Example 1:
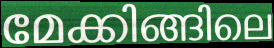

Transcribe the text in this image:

മേക്കിങ്ങിലെ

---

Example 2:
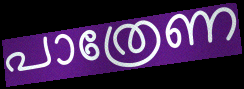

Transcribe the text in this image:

പാത്രേണ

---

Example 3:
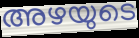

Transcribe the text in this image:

അഴയുടെ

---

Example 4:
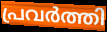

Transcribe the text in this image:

പ്രവർത്തി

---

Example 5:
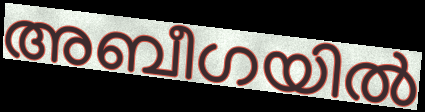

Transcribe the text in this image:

അബീഗയിൽ